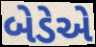
બેડેએ